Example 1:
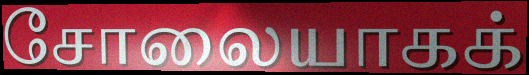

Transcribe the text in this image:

சோலையாகக்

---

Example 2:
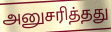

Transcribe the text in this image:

அனுசரித்தது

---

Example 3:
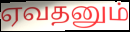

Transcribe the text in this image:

ஏவதனும்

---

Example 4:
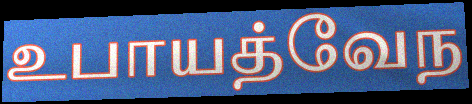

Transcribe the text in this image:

உபாயத்வேந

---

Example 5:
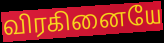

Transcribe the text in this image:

விரகினையே